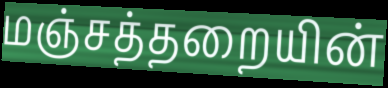
மஞ்சத்தறையின்